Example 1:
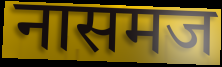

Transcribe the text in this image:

नासमज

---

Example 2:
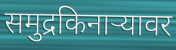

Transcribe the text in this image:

समुद्रकिनाऱ्यावर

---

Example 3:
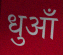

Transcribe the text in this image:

धुआँ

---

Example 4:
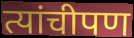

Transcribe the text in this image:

त्यांचीपण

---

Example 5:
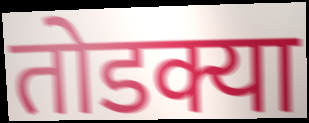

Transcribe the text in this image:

तोडक्या